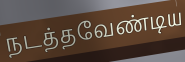
நடத்தவேண்டிய